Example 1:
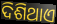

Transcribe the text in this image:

ଦିଶିଥାଏ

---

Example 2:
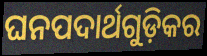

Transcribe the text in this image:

ଘନପଦାର୍ଥଗୁଡ଼ିକର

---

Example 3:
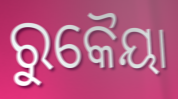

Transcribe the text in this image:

ରୁକୈୟା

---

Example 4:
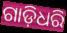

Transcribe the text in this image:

ଗାଡ଼ିଧରି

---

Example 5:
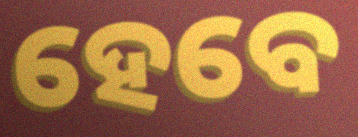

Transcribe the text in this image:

ହେବେ